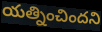
యత్నించిందని